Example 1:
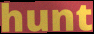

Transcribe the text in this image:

hunt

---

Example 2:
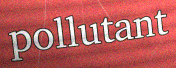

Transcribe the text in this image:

pollutant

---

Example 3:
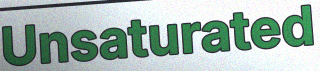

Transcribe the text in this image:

Unsaturated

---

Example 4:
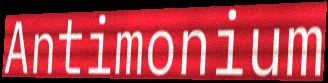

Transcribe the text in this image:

Antimonium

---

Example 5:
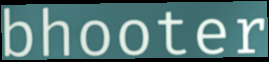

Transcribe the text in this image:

bhooter